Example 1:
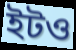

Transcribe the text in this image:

ইটও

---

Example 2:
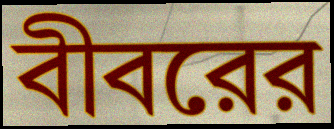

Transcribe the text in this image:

বীবরের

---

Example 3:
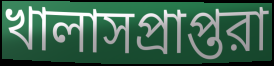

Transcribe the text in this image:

খালাসপ্রাপ্তরা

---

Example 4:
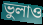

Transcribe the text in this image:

ভুলাও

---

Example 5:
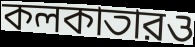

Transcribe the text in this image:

কলকাতারও